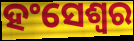
ହଂସେଶ୍ୱର